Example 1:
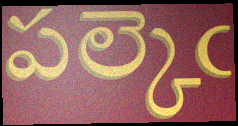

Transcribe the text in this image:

పల్కెఁ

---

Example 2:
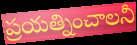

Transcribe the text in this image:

ప్రయత్నించాలనీ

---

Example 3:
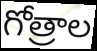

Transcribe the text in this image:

గోత్రాల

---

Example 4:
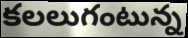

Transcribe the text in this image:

కలలుగంటున్న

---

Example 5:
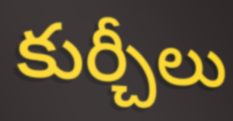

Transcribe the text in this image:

కుర్చీలు